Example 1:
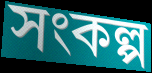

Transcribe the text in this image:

সংকল্প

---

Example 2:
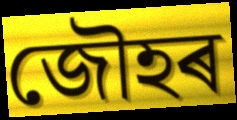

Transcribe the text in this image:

জৌহৰ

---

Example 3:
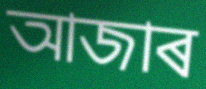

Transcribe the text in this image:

আজাৰ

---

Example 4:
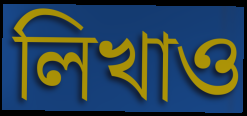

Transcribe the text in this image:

লিখাও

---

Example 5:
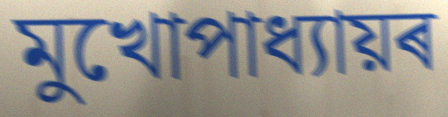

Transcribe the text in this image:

মুখোপাধ্যায়ৰ